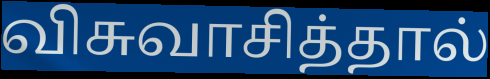
விசுவாசித்தால்